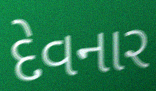
દેવનાર